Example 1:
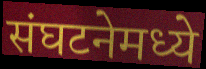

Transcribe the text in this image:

संघटनेमध्ये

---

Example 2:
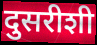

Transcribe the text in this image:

दुसरीशी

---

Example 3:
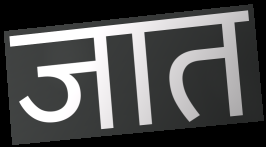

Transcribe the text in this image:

जात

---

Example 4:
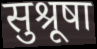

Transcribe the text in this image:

सुश्रूषा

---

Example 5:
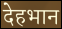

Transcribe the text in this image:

देहभान